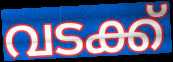
വടക്ക്